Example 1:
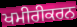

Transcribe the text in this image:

ਖਮੀਰੀਕਰਨ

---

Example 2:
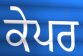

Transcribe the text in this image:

ਕੇਪਰ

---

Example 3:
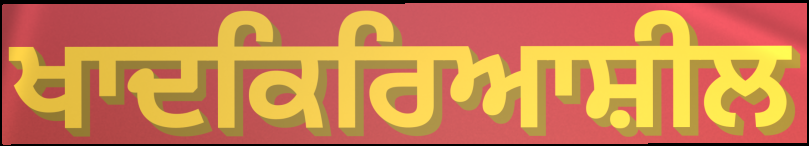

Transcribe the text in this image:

ਖਾਦਕਿਰਿਆਸ਼ੀਲ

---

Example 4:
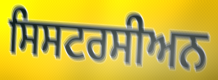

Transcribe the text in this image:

ਸਿਸਟਰਸੀਅਨ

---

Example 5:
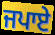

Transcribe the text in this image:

ਜਪਾਏ